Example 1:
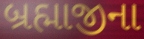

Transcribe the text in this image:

બ્રહ્માજીના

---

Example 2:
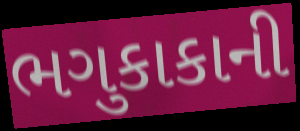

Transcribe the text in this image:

ભગુકાકાની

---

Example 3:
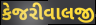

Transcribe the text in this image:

કેજરીવાલજી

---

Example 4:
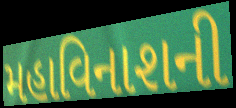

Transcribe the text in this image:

મહાવિનાશની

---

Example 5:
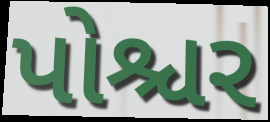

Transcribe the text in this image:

પોશ્ચર